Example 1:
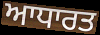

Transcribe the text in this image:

ਆਧਾਰਤ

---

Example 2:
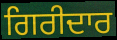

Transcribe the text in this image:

ਗਿਰੀਦਾਰ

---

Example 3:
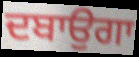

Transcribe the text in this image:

ਦਬਾਉਗਾ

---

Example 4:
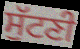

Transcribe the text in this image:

ਸੁੱਟਣੀ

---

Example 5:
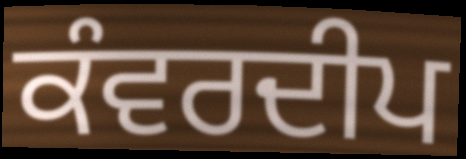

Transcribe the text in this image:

ਕੰਵਰਦੀਪ